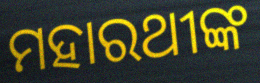
ମହାରଥୀଙ୍କ